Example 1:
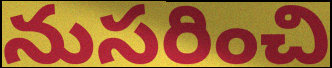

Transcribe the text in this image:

నుసరించి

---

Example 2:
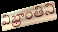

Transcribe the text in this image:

విభ్రాంతిని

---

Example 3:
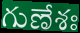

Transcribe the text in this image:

గుణేశః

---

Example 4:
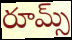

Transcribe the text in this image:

రూమ్స్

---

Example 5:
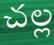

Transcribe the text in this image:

చల్ల